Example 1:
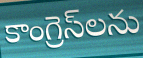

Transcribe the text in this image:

కాంగ్రెస్‌లను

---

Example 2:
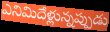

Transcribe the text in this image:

ఎనిమిదేళ్లున్నప్పుడు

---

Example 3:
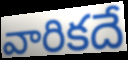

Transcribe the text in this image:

వారికదే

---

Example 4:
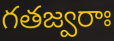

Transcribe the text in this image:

గతజ్వరాః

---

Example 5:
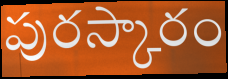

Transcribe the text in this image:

పురస్కారం